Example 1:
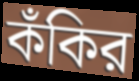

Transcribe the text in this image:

কঁকির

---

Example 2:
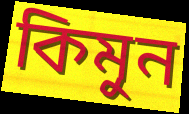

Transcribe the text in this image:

কিমুন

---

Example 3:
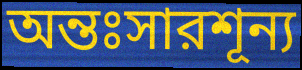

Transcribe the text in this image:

অন্তঃসারশূন্য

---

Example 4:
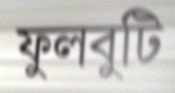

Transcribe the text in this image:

ফুলবুটি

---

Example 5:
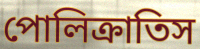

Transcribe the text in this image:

পোলিক্রাতিস